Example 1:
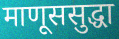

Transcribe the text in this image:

माणूससुद्धा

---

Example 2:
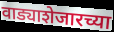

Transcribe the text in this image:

वाड्याशेजारच्या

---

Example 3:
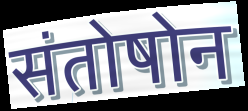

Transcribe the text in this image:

संतोषोन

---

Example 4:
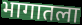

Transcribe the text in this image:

भागातला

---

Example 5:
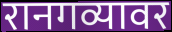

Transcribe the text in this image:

रानगव्यावर